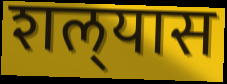
शल्यास